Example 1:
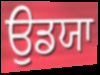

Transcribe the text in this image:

ਉਡਯਾ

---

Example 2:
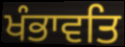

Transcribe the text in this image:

ਖੰਭਾਵਤਿ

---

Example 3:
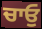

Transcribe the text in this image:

ਚਾਓੁ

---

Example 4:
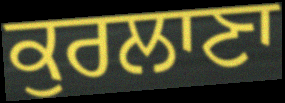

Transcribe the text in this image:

ਕੁਰਲਾਣਾ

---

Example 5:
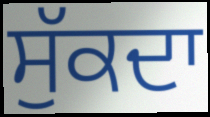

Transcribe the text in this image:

ਸੁੱਕਦਾ